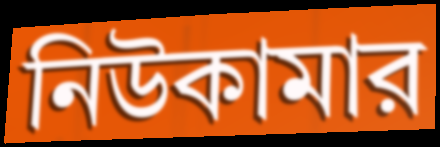
নিউকামার